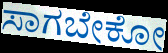
ಸಾಗಬೇಕೋ